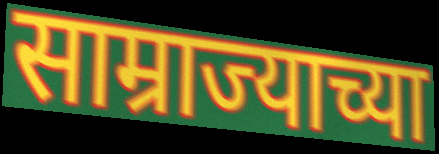
साम्राज्याच्या